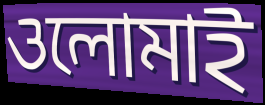
ওলোমাই